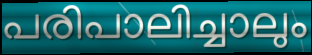
പരിപാലിച്ചാലും